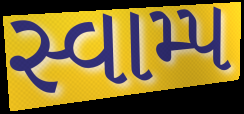
સ્વામ્પ